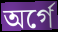
অর্গে